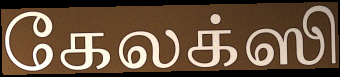
கேலக்ஸி